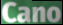
Cano